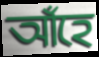
আঁহে